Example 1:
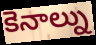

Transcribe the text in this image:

కెనాల్ను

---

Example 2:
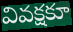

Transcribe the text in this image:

వివక్షకూ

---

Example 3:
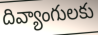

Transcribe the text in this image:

దివ్యాంగులకు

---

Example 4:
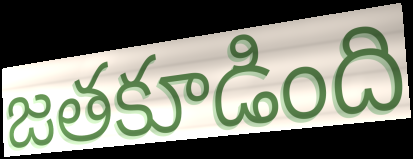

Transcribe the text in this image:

జతకూడింది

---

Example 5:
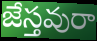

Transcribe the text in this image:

జేస్తవురా